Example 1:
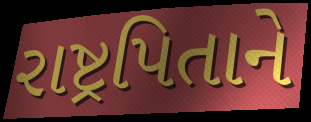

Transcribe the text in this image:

રાષ્ટ્રપિતાને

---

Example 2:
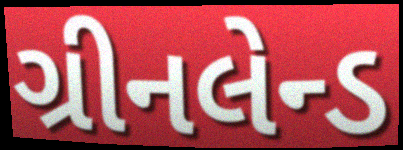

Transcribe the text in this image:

ગ્રીનલેન્ડ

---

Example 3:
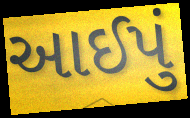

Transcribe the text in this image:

આઈપું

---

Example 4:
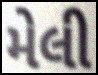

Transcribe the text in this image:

મેલી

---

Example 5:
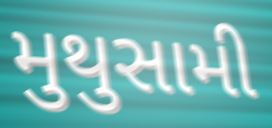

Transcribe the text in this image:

મુથુસામી